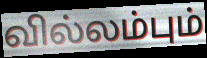
வில்லம்பும்